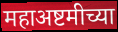
महाअष्टमीच्या